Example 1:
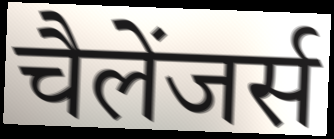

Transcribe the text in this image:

चैलेंजर्स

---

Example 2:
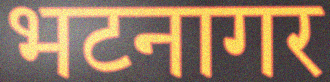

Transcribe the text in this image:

भटनागर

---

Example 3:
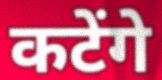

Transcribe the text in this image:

कटेंगे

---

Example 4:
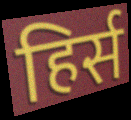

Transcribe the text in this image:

हिर्स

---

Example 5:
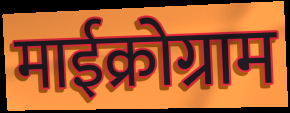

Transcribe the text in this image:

माईक्रोग्राम